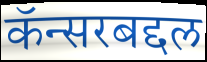
कॅन्सरबद्दल